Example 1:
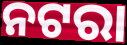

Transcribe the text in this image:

ନଟରା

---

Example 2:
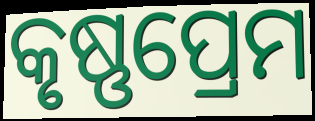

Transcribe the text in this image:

କୃଷ୍ଣପ୍ରେମ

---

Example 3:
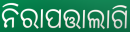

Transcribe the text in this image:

ନିରାପତ୍ତାଲାଗି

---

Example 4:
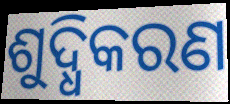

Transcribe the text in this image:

ଶୁଦ୍ଧିକରଣ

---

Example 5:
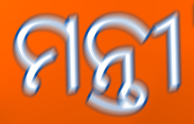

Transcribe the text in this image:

ମନ୍ତୀ